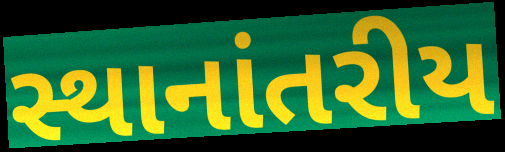
સ્થાનાંતરીય